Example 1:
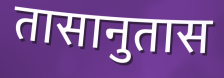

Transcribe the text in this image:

तासानुतास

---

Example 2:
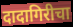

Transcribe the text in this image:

दादागिरीचा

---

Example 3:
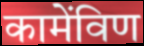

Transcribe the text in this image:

कामेंविण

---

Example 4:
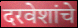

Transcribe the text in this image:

दरवेशांचे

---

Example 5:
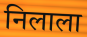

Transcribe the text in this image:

निलाला